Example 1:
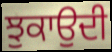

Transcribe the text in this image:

ਝੁਕਾਉਦੀ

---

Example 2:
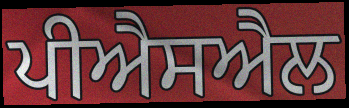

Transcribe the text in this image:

ਪੀਐਸਐਲ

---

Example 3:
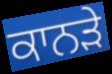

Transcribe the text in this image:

ਕਾਨੜੇ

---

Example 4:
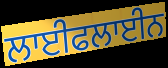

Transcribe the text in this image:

ਲਾਈਫਲਾਈਨ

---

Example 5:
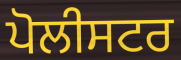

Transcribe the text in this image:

ਪੋਲੀਸਟਰ